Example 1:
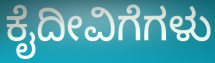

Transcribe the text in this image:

ಕೈದೀವಿಗೆಗಳು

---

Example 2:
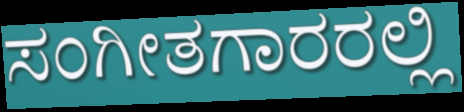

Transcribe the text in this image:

ಸಂಗೀತಗಾರರಲ್ಲಿ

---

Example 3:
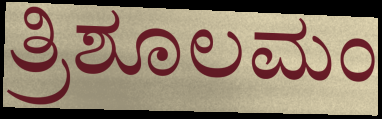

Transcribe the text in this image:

ತ್ರಿಶೂಲಮಂ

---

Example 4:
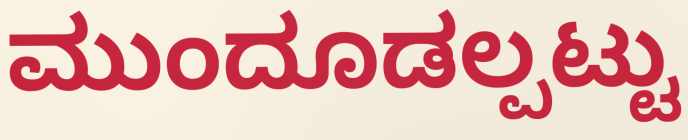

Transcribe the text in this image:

ಮುಂದೂಡಲ್ಪಟ್ಟು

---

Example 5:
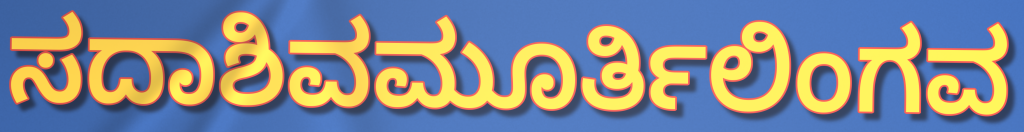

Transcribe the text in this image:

ಸದಾಶಿವಮೂರ್ತಿಲಿಂಗವ